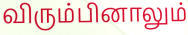
விரும்பினாலும்